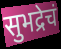
सुभद्रेचं